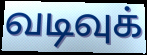
வடிவுக்